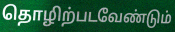
தொழிற்படவேண்டும்